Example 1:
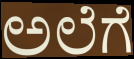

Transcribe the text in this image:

ಅಲೆಗೆ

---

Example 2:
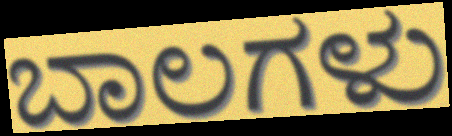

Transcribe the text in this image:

ಬಾಲಗಳು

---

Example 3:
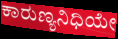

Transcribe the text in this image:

ಕಾರುಣ್ಯನಿಧಿಯೇ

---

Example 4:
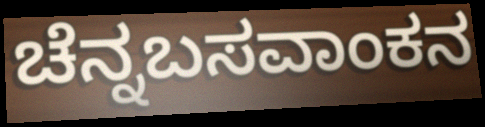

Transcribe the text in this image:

ಚೆನ್ನಬಸವಾಂಕನ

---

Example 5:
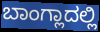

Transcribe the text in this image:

ಬಾಂಗ್ಲಾದಲ್ಲಿ